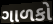
ગાળકો